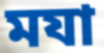
মযা